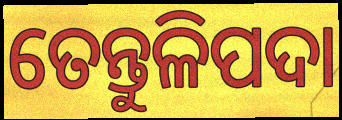
ତେନ୍ତୁଳିପଦା